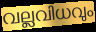
വല്ലവിധവും